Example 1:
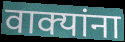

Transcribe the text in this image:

वाक्यांना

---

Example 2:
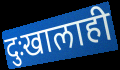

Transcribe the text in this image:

दुःखालाही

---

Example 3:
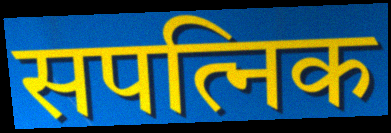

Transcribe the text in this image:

सपत्‍निक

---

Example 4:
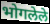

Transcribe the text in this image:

भोगलेले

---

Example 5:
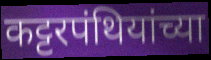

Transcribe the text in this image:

कट्टरपंथियांच्या